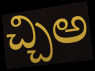
చ్చిఅ